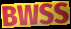
BWSS